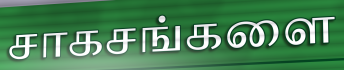
சாகசங்களை